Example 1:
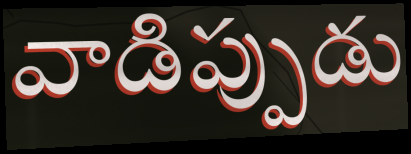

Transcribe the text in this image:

వాడిప్పుడు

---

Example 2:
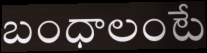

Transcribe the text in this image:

బంధాలంటే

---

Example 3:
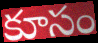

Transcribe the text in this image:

కూసం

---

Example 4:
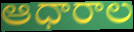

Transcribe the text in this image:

ఆధారాల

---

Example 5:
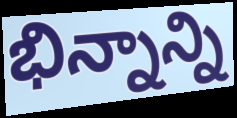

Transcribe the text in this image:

భిన్నాన్ని